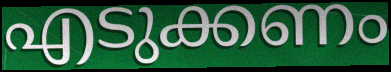
എടുക്കണം